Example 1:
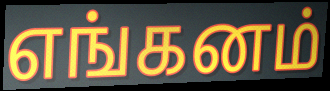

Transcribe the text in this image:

எங்கனம்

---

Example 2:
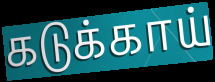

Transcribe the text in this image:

கடுக்காய்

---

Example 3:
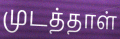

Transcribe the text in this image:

முடத்தாள்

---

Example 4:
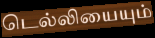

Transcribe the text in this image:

டெல்லியையும்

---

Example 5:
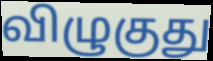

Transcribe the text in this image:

விழுகுது